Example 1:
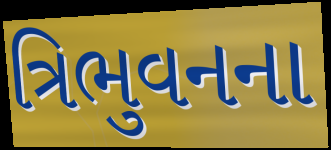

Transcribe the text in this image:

ત્રિભુવનના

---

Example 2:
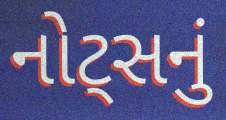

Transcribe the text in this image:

નોટ્સનું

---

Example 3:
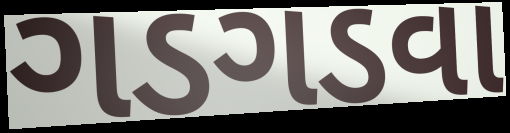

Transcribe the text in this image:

ગડગડવા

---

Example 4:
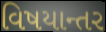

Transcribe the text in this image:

વિષયાન્તર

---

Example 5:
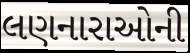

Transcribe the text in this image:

લણનારાઓની